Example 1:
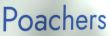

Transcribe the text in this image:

Poachers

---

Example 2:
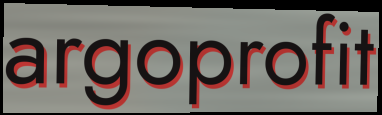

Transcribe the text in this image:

argoprofit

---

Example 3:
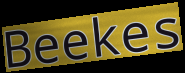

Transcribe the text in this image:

Beekes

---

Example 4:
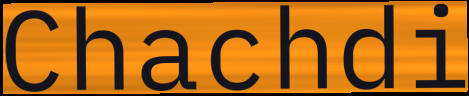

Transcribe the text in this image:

Chachdi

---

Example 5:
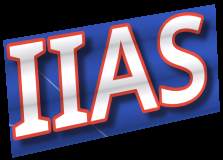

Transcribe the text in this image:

IIAS